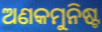
ଅଣକମୁନିଷ୍ଟ